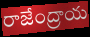
రాజేంద్రాయ